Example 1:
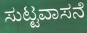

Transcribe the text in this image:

ಸುಟ್ಟವಾಸನೆ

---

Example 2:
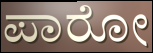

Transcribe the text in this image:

ಪಾರೋ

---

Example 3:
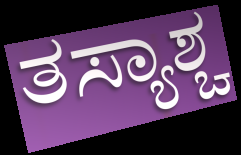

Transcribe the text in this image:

ತಸ್ಯಾಶ್ಚ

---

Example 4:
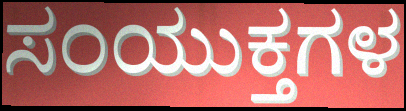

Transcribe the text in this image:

ಸಂಯುಕ್ತಗಳ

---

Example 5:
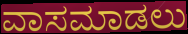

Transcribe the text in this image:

ವಾಸಮಾಡಲು